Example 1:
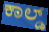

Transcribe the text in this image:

ಕಾಲ್ಡ್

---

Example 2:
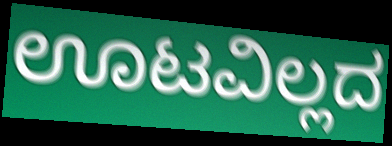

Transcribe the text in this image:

ಊಟವಿಲ್ಲದ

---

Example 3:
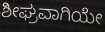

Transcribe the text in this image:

ಶೀಘ್ರವಾಗಿಯೇ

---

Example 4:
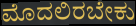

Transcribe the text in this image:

ಮೊದಲಿರಬೇಕು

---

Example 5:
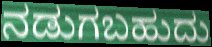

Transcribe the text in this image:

ನಡುಗಬಹುದು